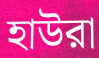
হাউরা